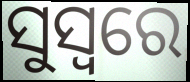
ସୁସ୍ୱରେ